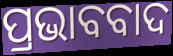
ପ୍ରଭାବବାଦ